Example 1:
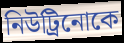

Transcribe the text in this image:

নিউট্রিনোকে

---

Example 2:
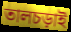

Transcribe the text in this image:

তালচড়াই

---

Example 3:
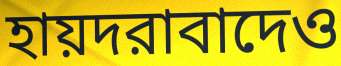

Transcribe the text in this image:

হায়দরাবাদেও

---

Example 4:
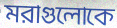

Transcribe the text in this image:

মরাগুলোকে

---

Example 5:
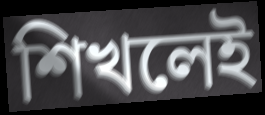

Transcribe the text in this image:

শিখলেই